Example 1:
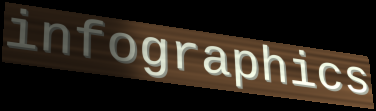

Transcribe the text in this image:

infographics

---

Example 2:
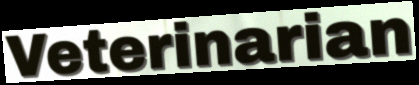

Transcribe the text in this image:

Veterinarian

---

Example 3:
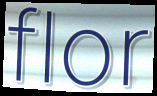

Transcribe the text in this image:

flor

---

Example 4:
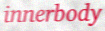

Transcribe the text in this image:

innerbody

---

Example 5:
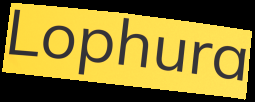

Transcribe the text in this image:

Lophura